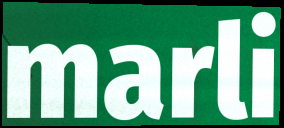
marli